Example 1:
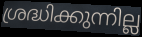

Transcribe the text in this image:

ശ്രദ്ധിക്കുന്നില്ല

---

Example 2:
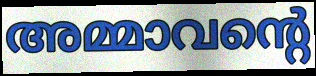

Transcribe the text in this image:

അമ്മാവന്റെ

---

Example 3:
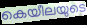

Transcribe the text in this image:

കെയീലയുടെ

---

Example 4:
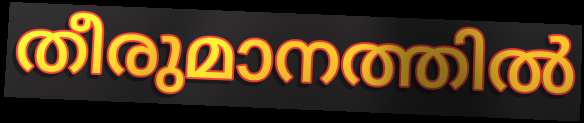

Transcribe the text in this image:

തീരുമാനത്തിൽ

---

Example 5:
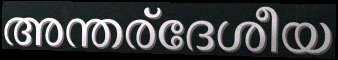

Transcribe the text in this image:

അന്തര്ദേശീയ